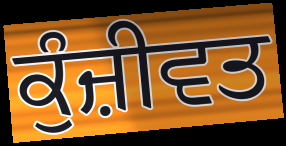
ਕੁੰਜ਼ੀਵਤ